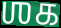
ஶக